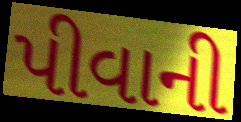
પીવાની